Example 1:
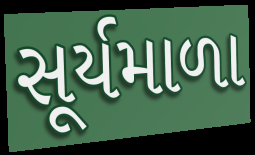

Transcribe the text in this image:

સૂર્યમાળા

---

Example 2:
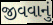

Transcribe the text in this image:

જીવવાનું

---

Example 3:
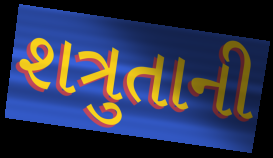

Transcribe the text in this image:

શત્રુતાની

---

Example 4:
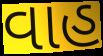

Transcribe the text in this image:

વાહ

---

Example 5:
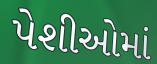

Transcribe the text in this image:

પેશીઓમાં